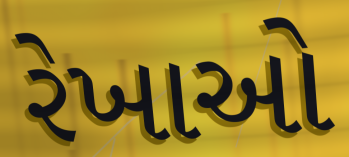
રેખાઓ